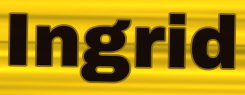
Ingrid